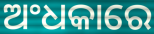
ଅଂଧକାରେ